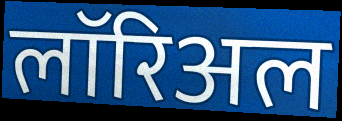
लॉरिअल